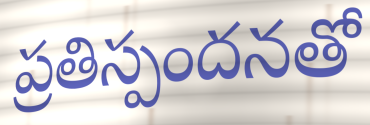
ప్రతిస్పందనతో